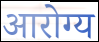
आरोग्य